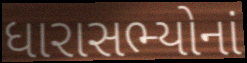
ધારાસભ્યોનાં